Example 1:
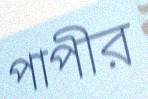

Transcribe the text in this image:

পাপীর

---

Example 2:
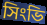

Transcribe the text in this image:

সিংভি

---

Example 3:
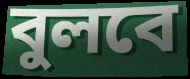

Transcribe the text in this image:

বুলবে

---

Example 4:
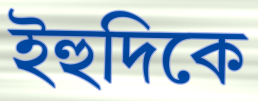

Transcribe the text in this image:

ইহুদিকে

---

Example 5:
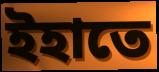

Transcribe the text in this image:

ইহাতে